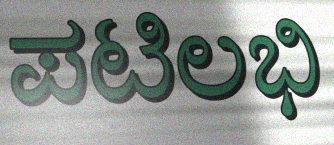
ಪಟಿಲಭಿ